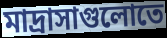
মাদ্রাসাগুলোতে